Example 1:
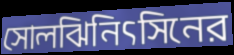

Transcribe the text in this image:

সোলঝিনিৎসিনের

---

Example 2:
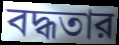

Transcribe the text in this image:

বদ্ধতার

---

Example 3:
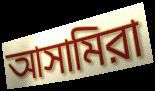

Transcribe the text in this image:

আসামিরা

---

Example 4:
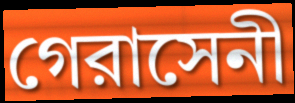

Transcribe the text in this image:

গেরাসেনী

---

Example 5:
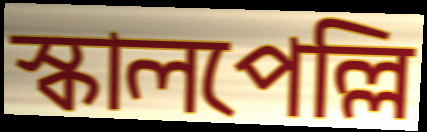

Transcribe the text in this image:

স্কালপেল্লি